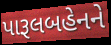
પારૂલબહેનને